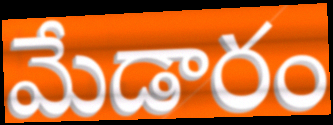
మేడారం